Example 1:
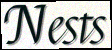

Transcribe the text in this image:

Nests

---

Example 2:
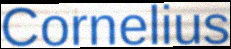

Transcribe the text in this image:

Cornelius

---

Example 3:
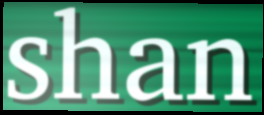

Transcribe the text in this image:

shan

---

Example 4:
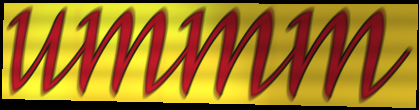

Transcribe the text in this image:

ummm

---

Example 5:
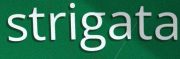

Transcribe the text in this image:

strigata